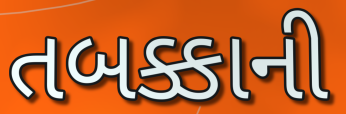
તબક્કાની